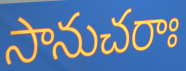
సానుచరాః